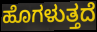
ಹೊಗಳುತ್ತದೆ